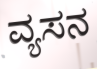
ವ್ಯಸನ